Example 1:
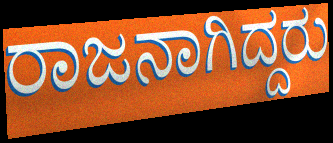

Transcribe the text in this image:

ರಾಜನಾಗಿದ್ದರು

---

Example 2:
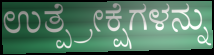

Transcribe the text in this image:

ಉತ್ಪ್ರೇಕ್ಷೆಗಳನ್ನು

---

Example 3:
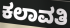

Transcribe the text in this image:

ಕಲಾವತಿ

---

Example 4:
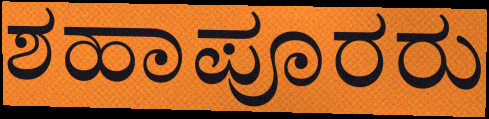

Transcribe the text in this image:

ಶಹಾಪೂರರು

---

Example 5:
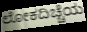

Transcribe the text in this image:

ಲೋಕದಿಚ್ಚೆಯ